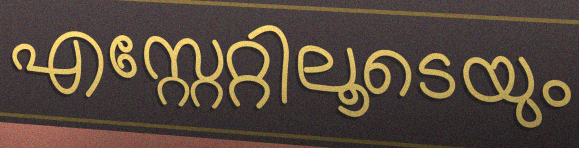
എസ്റ്റേറ്റിലൂടെയും